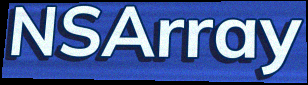
NSArray